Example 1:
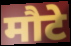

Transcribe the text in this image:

मौटे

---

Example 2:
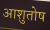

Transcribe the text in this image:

आशुतोष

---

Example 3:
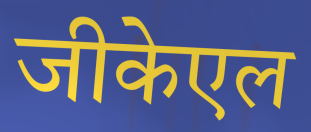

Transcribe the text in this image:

जीकेएल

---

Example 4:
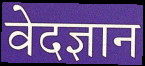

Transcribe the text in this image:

वेदज्ञान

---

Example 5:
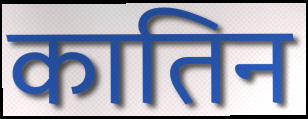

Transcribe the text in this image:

कातिन